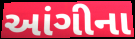
આંગીના